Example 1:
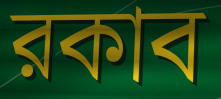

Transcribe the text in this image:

রকাব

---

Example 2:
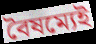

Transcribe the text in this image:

বৈষম্যেই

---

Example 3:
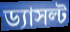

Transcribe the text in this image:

ড্যাসল্ট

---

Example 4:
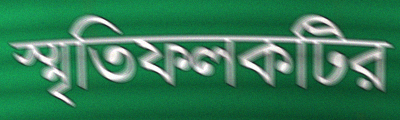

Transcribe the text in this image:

স্মৃতিফলকটির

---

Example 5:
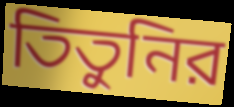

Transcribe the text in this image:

তিতুনির